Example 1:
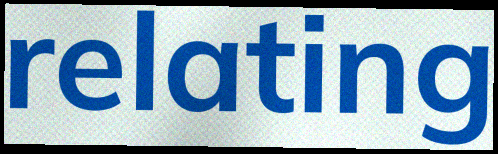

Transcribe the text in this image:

relating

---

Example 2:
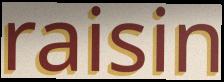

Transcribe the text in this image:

raisin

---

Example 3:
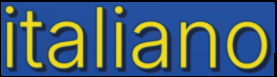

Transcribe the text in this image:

italiano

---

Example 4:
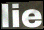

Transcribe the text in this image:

lie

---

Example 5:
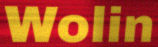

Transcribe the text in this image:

Wolin